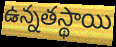
ఉన్నతస్థాయి